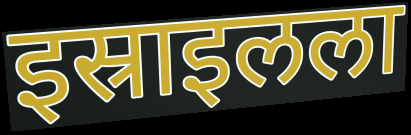
इस्राइलला